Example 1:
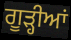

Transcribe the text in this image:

ਗੂੜ੍ਹੀਆਂ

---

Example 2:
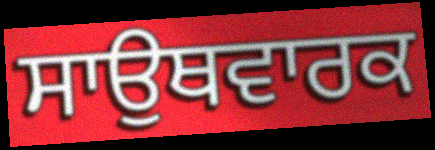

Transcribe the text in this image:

ਸਾਉਥਵਾਰਕ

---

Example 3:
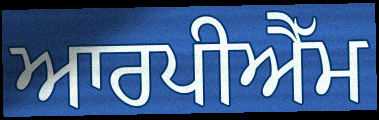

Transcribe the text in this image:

ਆਰਪੀਐੱਮ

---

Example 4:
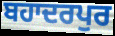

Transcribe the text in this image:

ਬਹਾਦਰਪੁਰ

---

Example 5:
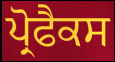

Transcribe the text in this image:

ਪ੍ਰੋਫੈਕਸ